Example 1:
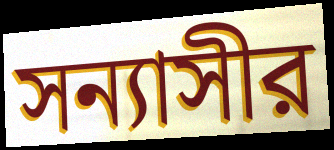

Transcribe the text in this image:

সন্যাসীর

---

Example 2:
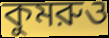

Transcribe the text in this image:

কুমরুও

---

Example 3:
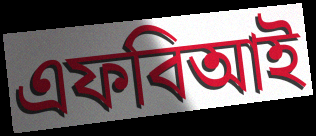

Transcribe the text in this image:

এফবিআই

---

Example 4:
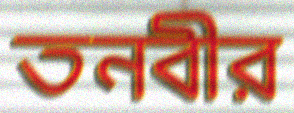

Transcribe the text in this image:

তনবীর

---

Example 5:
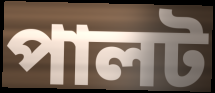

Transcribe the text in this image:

পালট